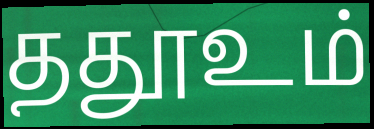
ததூஉம்